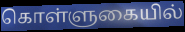
கொள்ளுகையில்